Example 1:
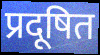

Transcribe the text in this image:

प्रदूषित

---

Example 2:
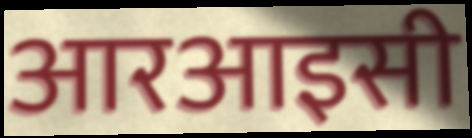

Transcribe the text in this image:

आरआइसी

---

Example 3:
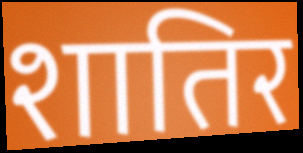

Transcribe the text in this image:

शातिर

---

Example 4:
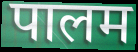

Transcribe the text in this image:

पालम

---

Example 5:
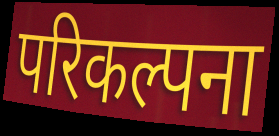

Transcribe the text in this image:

परिकल्पना